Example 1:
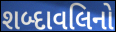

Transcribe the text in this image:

શબ્દાવલિનો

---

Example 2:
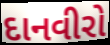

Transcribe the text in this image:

દાનવીરો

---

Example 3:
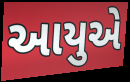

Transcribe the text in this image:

આયુએ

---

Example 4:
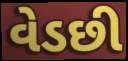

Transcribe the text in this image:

વેડછી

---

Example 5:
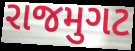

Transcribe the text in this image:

રાજમુગટ